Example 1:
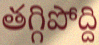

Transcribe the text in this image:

తగ్గిపోద్ది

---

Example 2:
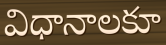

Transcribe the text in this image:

విధానాలకూ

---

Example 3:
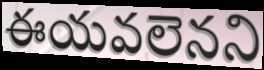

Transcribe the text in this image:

ఈయవలెనని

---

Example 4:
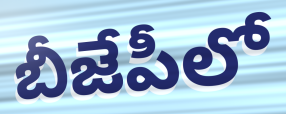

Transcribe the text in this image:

బీజేపీలో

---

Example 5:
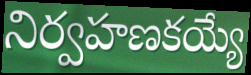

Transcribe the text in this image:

నిర్వహణకయ్యే